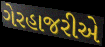
ગેરહાજરીએ